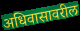
अधिवासावरील